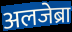
अलजेब्रा